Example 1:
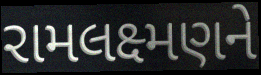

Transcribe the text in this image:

રામલક્ષ્મણને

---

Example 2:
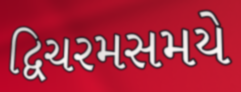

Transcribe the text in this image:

દ્વિચરમસમયે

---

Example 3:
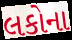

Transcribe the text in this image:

લકોના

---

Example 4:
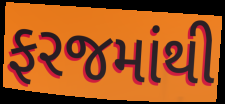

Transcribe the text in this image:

ફરજમાંથી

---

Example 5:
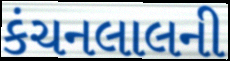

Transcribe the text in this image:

કંચનલાલની